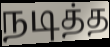
நடித்த